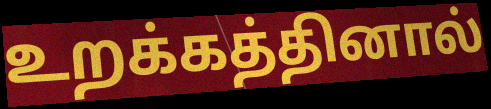
உறக்கத்தினால்